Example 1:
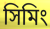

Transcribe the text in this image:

সিমিং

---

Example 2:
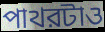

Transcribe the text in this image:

পাথরটাও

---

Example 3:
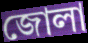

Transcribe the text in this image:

জোলা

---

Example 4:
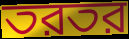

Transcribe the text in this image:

তরতর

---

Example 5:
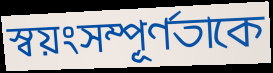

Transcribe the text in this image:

স্বয়ংসম্পূর্ণতাকে